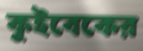
কুইবেকের